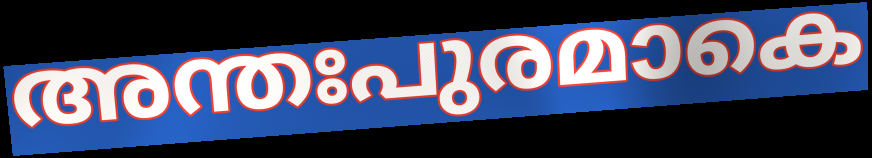
അന്തഃപുരമാകെ